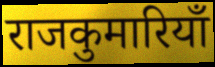
राजकुमारियाँ